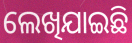
ଲେଖିଯାଇଛି